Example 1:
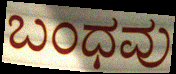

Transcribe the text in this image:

ಬಂಧವು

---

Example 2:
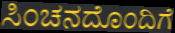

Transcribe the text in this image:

ಸಿಂಚನದೊಂದಿಗೆ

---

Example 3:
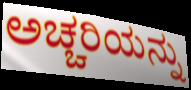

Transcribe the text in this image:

ಅಚ್ಚರಿಯನ್ನು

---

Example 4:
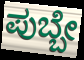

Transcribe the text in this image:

ಪುಬ್ಬೇ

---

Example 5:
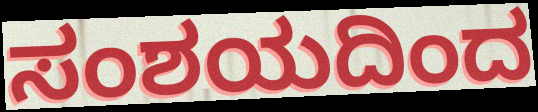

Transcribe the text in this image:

ಸಂಶಯದಿಂದ